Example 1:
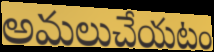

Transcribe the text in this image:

అమలుచేయటం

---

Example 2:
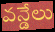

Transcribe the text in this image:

వన్డేలు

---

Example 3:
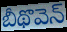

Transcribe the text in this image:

బీథొవెన్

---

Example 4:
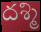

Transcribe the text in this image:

దశ్మి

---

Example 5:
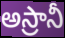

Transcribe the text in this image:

అస్రానీ